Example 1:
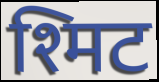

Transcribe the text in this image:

श्मिट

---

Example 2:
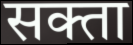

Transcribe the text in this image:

सक्‍ता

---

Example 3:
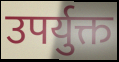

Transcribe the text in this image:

उपर्युक्त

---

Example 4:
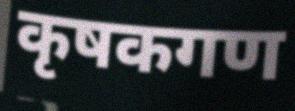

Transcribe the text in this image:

कृषकगण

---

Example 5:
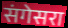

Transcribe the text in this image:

संगेसरा